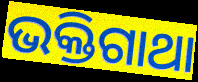
ଭକ୍ତିଗାଥା